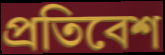
প্রতিবেশ